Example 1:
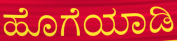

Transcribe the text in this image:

ಹೊಗೆಯಾಡಿ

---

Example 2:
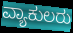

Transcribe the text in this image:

ವ್ಯಾಕುಲರು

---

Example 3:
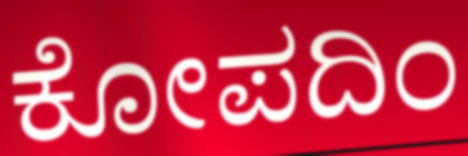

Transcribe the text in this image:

ಕೋಪದಿಂ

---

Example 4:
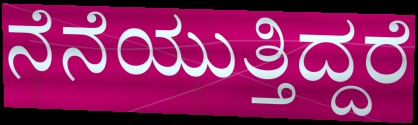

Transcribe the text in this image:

ನೆನೆಯುತ್ತಿದ್ದರೆ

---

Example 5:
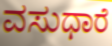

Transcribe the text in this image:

ವಸುಧಾರೆ